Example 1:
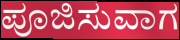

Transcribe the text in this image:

ಪೂಜಿಸುವಾಗ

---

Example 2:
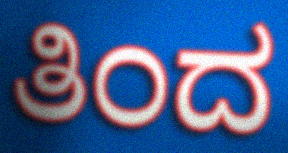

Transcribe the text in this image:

ತಿಂದ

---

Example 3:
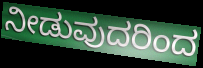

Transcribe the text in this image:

ನೀಡುವುದರಿಂದ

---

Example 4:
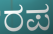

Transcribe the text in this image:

ರಪ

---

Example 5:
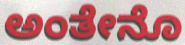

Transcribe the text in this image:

ಅಂತೇನೊ